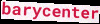
barycenter